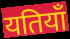
यतियाँ